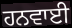
ਹਨਵਾਈ